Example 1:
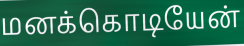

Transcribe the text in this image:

மனக்கொடியேன்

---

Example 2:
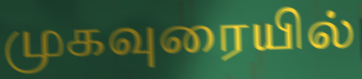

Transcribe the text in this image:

முகவுரையில்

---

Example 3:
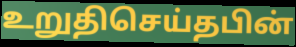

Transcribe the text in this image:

உறுதிசெய்தபின்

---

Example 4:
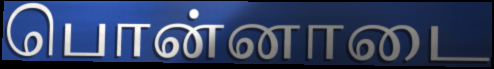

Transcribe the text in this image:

பொன்னாடை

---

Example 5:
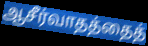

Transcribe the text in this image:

ஆசீர்வாதத்தைத்